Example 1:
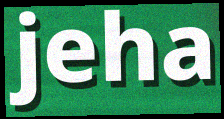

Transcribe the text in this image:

jeha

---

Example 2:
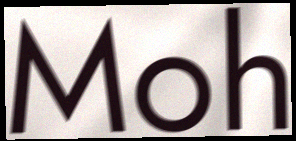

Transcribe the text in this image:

Moh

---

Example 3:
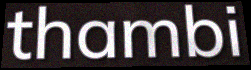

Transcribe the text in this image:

thambi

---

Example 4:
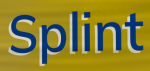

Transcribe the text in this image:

Splint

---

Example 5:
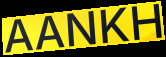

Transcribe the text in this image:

AANKH